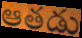
ఆతడు